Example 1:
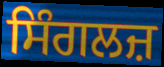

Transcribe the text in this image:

ਸਿੰਗਲਜ਼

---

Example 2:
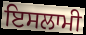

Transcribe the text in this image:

ਇਸਲਾਮੀ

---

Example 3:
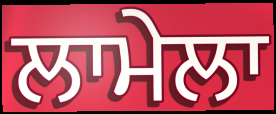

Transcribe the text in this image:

ਲਾਮੇਲਾ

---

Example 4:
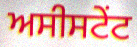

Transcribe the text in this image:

ਅਸੀਸਟੇਂਟ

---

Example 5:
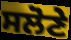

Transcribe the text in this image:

ਸਲੋਣੇ